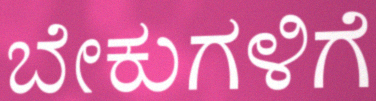
ಬೇಕುಗಳಿಗೆ